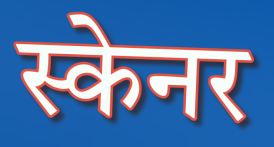
स्केनर